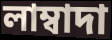
লাম্বাদা